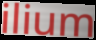
ilium